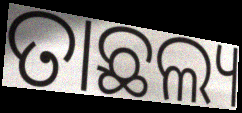
ତାଛଲ୍ୟ